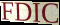
FDIC